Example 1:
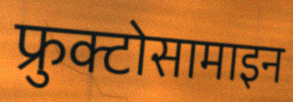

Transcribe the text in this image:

फ्रुक्टोसामाइन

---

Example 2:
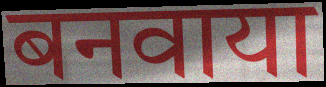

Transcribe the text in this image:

बनवाया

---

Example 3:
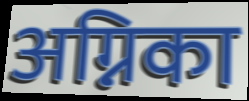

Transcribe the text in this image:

अग्निका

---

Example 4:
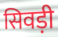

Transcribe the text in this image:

सिवड़ी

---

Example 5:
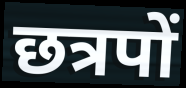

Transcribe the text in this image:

छत्रपों